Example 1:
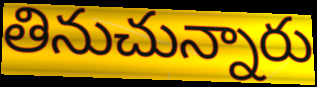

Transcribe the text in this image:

తినుచున్నారు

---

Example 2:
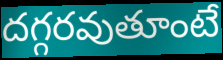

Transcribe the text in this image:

దగ్గరవుతూంటే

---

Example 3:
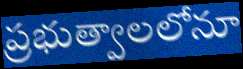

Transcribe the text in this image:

ప్రభుత్వాలలోనూ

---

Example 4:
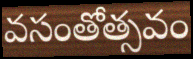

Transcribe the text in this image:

వసంతోత్సవం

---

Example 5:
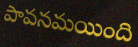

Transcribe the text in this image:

పావనమయింది